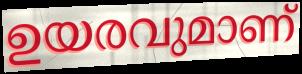
ഉയരവുമാണ്